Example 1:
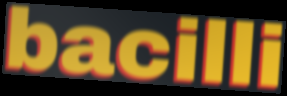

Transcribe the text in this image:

bacilli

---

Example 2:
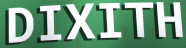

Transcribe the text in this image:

DIXITH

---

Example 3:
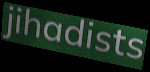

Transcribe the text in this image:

jihadists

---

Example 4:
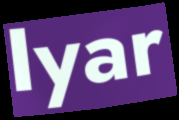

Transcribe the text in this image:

Iyar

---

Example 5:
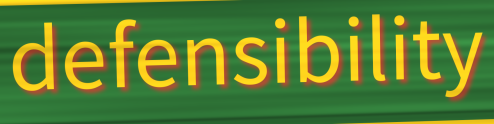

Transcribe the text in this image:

defensibility